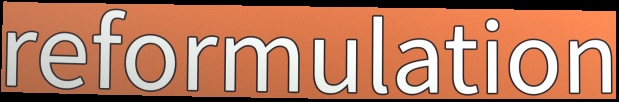
reformulation